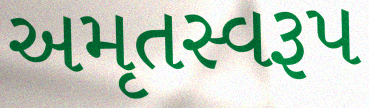
અમૃતસ્વરૂપ